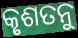
କୃଶତନୁ